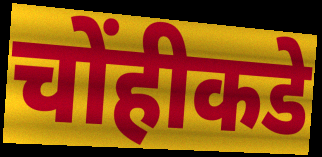
चोंहीकडे